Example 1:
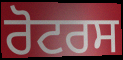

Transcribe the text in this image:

ਰੋਟਰਸ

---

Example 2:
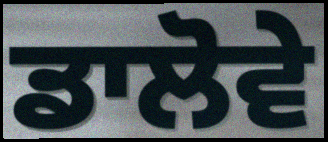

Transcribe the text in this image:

ਡਾਲੋਵੇ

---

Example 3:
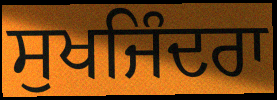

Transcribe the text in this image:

ਸੁਖਜਿੰਦਰਾ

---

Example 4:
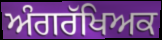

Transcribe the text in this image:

ਅੰਗਰੱਖਿਅਕ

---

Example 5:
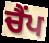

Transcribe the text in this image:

ਚੈਂਪ